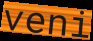
veni